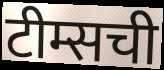
टीम्सची